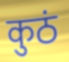
कुठं